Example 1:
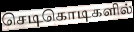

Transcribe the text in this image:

செடிகொடிகளில்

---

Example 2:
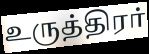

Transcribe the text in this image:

உருத்திரர்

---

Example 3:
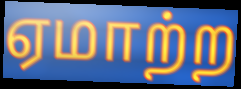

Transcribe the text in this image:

ஏமாற்ற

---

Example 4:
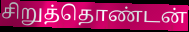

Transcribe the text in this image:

சிறுத்தொண்டன்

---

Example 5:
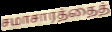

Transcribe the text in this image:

சமாசாரத்தைத்